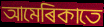
আমেৰিকাতে